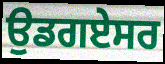
ਉਡਗਏਸਰ